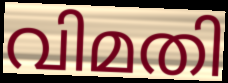
വിമതി